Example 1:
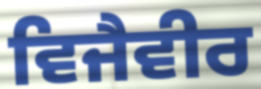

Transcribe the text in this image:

ਵਿਜੈਵੀਰ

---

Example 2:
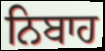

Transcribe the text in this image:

ਨਿਬਾਹ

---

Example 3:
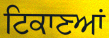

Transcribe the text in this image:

ਟਿਕਾਣਆਂ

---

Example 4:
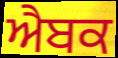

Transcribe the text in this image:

ਐਬਕ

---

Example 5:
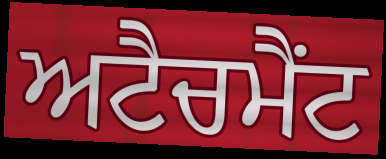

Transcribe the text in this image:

ਅਟੈਚਮੈਂਟ